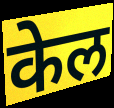
केल